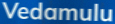
Vedamulu